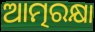
ଆତ୍ମରକ୍ଷା